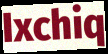
Ixchiq